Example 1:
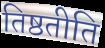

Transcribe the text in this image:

तिष्ठतीति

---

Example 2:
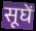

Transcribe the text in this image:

सूघें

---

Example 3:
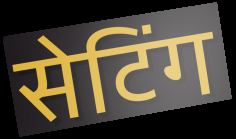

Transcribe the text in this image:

सेटिंग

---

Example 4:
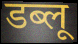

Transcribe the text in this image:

डब्लू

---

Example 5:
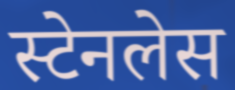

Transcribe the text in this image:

स्टेनलेस